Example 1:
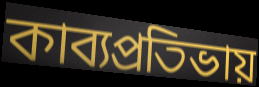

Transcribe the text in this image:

কাব্যপ্রতিভায়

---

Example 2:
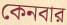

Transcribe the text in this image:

কেনবার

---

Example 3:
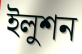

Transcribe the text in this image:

ইলুশন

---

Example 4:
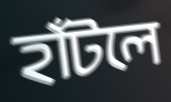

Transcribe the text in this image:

হাঁটলে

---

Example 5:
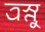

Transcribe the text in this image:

ত্রস্নু